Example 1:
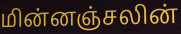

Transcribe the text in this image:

மின்னஞ்சலின்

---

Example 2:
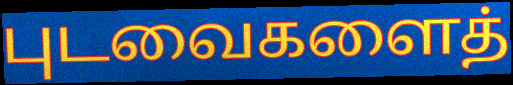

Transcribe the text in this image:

புடவைகளைத்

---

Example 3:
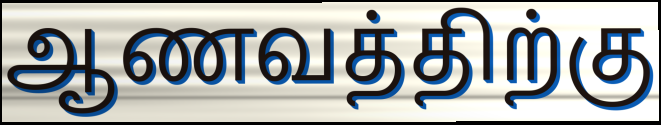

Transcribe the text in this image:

ஆணவத்திற்கு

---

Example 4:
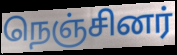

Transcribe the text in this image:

நெஞ்சினர்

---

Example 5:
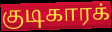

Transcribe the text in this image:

குடிகாரக்